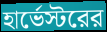
হার্ভেস্টরের